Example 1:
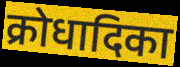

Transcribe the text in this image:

क्रोधादिका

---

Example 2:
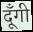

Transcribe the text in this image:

दूँगी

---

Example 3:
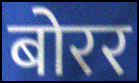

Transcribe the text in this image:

बोरर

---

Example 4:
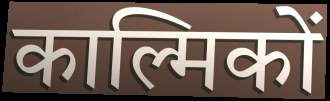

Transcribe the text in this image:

काल्मिकों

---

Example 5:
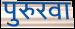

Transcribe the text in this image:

पुरुरवा